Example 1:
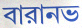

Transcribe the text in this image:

বারানভ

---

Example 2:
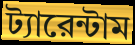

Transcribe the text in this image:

ট্যারেন্টাম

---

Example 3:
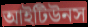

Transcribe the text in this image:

আইটিউনস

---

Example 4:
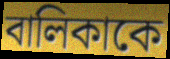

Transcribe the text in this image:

বালিকাকে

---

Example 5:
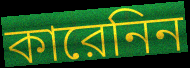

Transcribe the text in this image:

কারেনিন